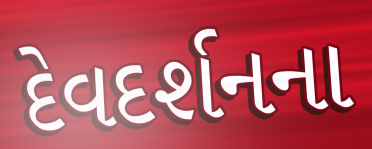
દેવદર્શનના